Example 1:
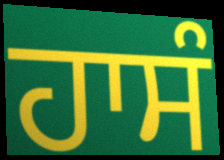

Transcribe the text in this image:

ਹਾਸੰ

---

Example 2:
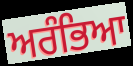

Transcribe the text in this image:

ਅਰੰਭਿਆ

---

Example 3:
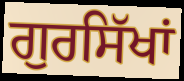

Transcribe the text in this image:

ਗੁਰਸਿੱਖਾਂ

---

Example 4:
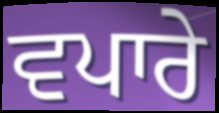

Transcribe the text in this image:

ਵਪਾਰੇ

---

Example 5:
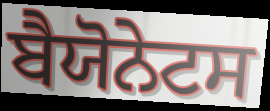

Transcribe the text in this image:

ਬੈਯੋਨੇਟਸ